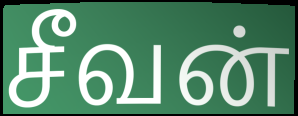
சீவன்